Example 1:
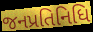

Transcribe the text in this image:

જનપ્રતિનિધિ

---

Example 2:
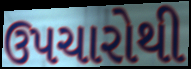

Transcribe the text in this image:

ઉપચારોથી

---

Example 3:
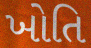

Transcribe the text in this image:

ખોતિ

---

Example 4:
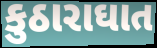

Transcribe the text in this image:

કુઠારાઘાત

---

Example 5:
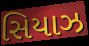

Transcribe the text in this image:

સિયાઝ